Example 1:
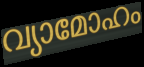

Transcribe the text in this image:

വ്യാമോഹം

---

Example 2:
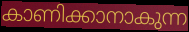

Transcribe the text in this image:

കാണിക്കാനാകുന്ന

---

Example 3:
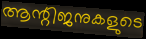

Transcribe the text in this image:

ആന്റിജനുകളുടെ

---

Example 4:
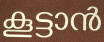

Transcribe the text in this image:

കൂട്ടാൻ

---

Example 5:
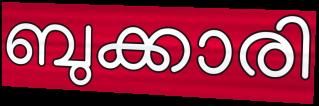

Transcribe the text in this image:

ബുക്കാരി